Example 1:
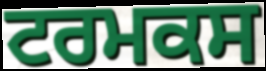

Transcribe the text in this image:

ਟਰਮਕਸ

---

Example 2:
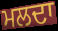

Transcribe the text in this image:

ਮਲਦਾ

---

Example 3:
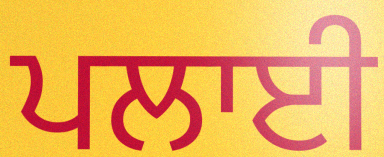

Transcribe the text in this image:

ਪਲਾਈ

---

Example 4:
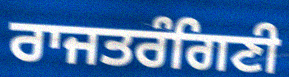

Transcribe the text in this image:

ਰਾਜਤਰੰਗਿਣੀ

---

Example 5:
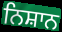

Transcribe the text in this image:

ਨਿਸ਼ਾਨ